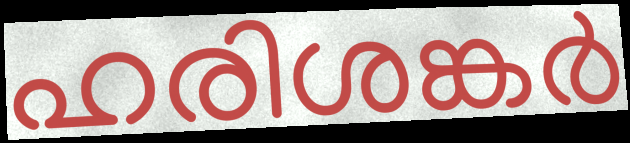
ഹരിശങ്കർ